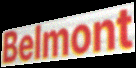
Belmont